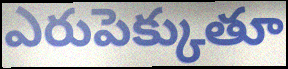
ఎరుపెక్కుతూ